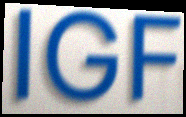
IGF